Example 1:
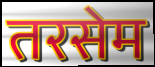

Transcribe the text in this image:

तरसेम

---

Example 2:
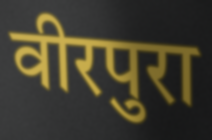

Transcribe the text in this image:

वीरपुरा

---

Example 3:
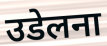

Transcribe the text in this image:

उडेलना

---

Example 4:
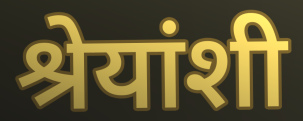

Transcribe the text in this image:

श्रेयांशी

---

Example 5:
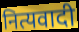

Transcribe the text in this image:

नित्यवादी